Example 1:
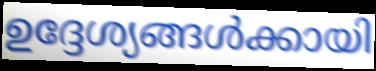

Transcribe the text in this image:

ഉദ്ദേശ്യങ്ങൾക്കായി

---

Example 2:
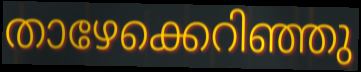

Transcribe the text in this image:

താഴേക്കെറിഞ്ഞു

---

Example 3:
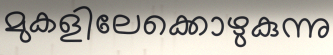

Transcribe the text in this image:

മുകളിലേക്കൊഴുകുന്നു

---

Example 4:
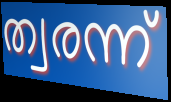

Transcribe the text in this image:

ത്വരന്ന്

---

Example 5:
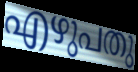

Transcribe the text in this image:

എഴുപതു